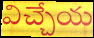
విచ్చేయ